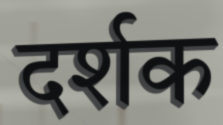
दर्शक